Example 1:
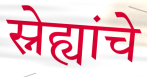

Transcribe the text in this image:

स्नेह्यांचे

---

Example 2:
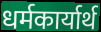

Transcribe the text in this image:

धर्मकार्यार्थ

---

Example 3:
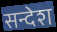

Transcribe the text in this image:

सन्देश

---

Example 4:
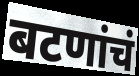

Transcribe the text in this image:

बटणांचं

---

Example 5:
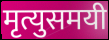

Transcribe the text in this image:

मृत्युसमयी